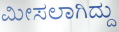
ಮೀಸಲಾಗಿದ್ದು